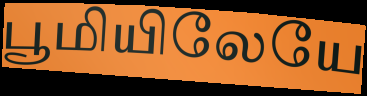
பூமியிலேயே